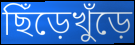
ছিঁড়েখুঁড়ে